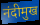
नंदीमुख